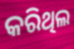
କରିଥିଲ